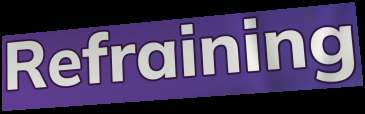
Refraining